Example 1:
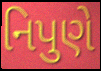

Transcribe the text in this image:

નિપુણે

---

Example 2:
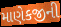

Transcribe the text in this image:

માણેકજીની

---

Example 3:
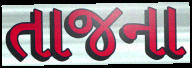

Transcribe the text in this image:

તાજના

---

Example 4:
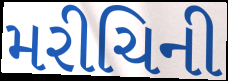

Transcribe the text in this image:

મરીચિની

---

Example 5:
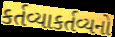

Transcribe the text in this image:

કર્તવ્યાકર્તવ્યનો